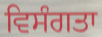
ਵਿਸੰਗਤਾ